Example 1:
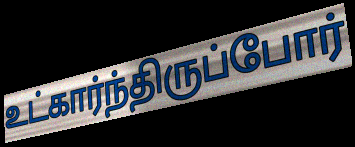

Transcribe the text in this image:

உட்கார்ந்திருப்போர்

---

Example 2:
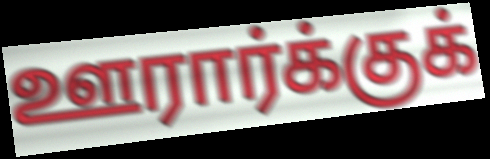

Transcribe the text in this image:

ஊரார்க்குக்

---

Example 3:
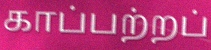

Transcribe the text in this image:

காப்பற்றப்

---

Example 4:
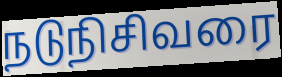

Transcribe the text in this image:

நடுநிசிவரை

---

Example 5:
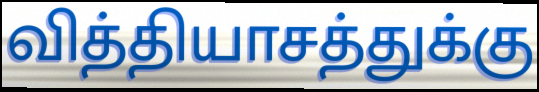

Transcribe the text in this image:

வித்தியாசத்துக்கு